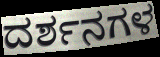
ದರ್ಶನಗಳ